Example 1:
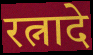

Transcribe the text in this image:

रत्नादे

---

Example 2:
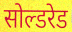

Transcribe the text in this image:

सोल्डरेड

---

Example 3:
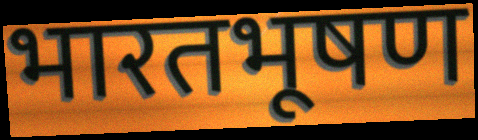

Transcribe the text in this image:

भारतभूषण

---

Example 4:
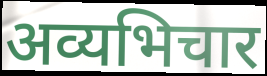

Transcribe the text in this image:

अव्यभिचार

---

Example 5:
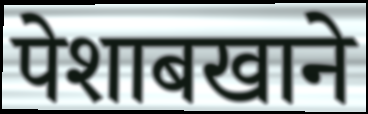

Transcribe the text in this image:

पेशाबखाने